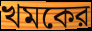
খমকের